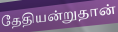
தேதியன்றுதான்